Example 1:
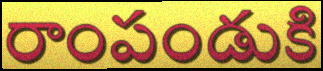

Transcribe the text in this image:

రాంపండుకి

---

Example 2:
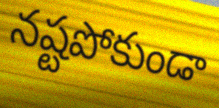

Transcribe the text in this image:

నష్టపోకుండా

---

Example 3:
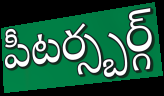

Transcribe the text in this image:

పీటర్స్బర్గ్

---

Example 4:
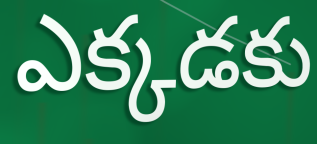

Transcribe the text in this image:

ఎక్కడకు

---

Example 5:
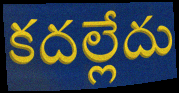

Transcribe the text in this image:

కదల్లేదు